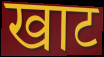
खाट